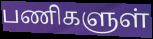
பணிகளுள்